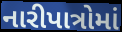
નારીપાત્રોમાં